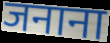
जनाना